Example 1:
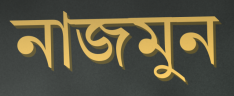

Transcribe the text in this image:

নাজমুন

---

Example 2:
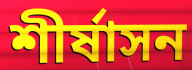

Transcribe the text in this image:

শীর্ষাসন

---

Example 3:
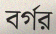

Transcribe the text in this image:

বর্গর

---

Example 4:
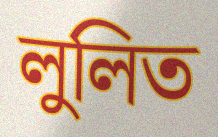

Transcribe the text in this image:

লুলিত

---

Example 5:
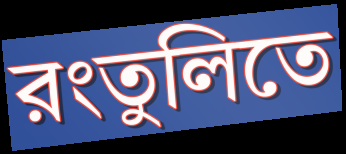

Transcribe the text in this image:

রংতুলিতে